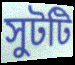
সুটটি